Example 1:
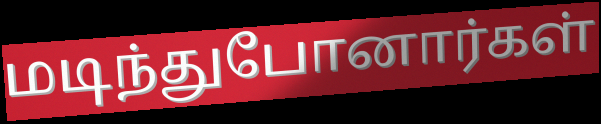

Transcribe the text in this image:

மடிந்துபோனார்கள்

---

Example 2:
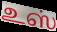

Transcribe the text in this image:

உஸ்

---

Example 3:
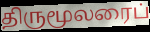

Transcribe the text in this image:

திருமூலரைப்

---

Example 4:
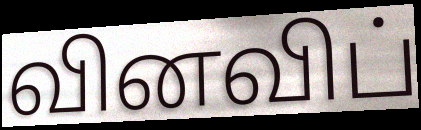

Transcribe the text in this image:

வினவிப்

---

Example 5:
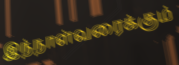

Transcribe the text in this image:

இந்நாள்வரைக்கும்